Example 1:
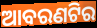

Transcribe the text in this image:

ଆବରଣଟିର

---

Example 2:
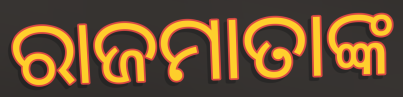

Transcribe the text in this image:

ରାଜମାତାଙ୍କ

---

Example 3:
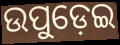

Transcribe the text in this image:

ଉପୁଡ଼େଇ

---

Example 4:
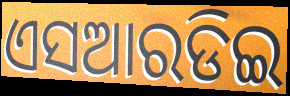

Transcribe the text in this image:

ଏସଆରଡିଇ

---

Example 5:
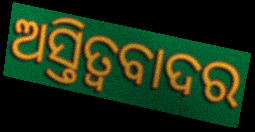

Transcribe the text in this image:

ଅସ୍ତିତ୍ବବାଦର